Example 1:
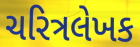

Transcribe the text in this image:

ચરિત્રલેખક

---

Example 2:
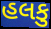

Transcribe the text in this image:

હલકુ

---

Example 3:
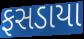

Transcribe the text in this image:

ફસડાયા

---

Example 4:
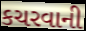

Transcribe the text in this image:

કચરવાની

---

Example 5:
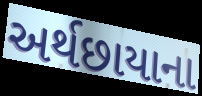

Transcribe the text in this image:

અર્થછાયાના